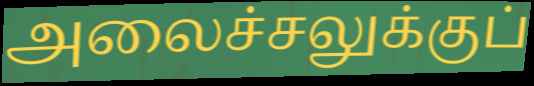
அலைச்சலுக்குப்